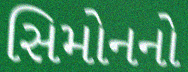
સિમોનનો